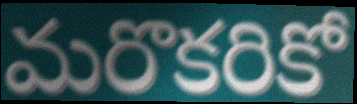
మరొకరికో